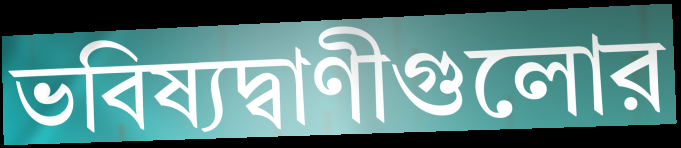
ভবিষ্যদ্বাণীগুলোর